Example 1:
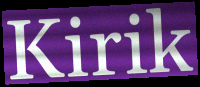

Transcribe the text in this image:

Kirik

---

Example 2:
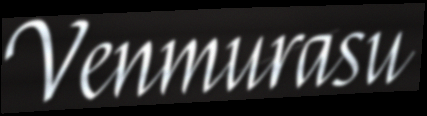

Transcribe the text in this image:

Venmurasu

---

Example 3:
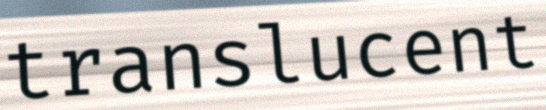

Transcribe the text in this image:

translucent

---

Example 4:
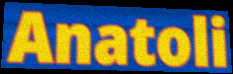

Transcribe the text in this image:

Anatoli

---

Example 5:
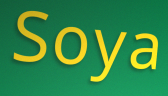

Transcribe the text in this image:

Soya